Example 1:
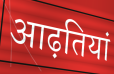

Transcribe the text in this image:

आढ़तियां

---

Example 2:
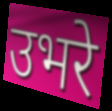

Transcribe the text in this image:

उभरे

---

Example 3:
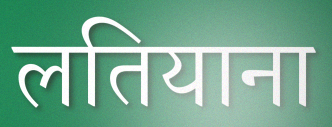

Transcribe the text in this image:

लतियाना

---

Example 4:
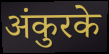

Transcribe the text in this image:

अंकुरके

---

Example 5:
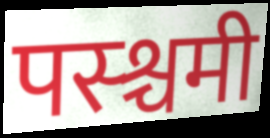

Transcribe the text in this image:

पस्श्चमी